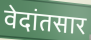
वेदांतसार